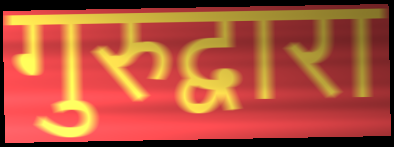
गुरुद्वारा